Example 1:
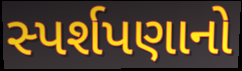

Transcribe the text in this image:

સ્પર્શપણાનો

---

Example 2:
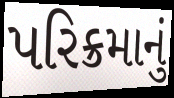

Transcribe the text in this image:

પરિક્રમાનું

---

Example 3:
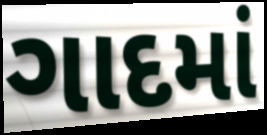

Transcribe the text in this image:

ગાદમાં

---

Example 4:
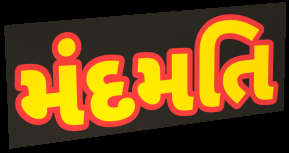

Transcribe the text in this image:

મંદમતિ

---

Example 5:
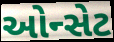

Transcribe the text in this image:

ઓન્સેટ